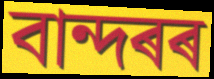
বান্দৰৰ